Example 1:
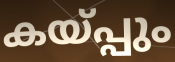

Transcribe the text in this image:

കയ്പ്പും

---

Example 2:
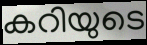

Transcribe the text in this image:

കറിയുടെ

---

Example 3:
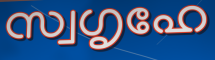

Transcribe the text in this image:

സ്വഗൃഹേ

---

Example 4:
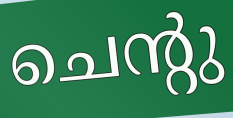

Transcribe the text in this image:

ചെന്റു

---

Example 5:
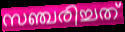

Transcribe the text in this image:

സഞ്ചരിച്ചത്